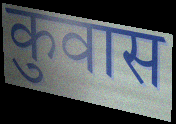
कुवास